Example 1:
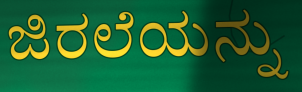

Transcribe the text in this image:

ಜಿರಲೆಯನ್ನು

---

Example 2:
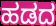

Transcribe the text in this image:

ಹಡದ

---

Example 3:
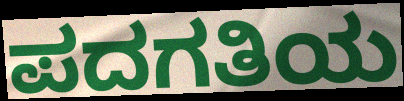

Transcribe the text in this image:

ಪದಗತಿಯ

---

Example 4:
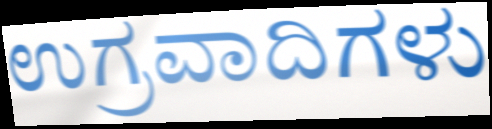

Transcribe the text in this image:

ಉಗ್ರವಾದಿಗಳು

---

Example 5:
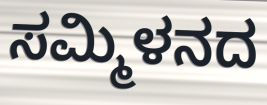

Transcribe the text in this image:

ಸಮ್ಮಿಳನದ